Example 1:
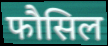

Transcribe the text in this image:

फौसिल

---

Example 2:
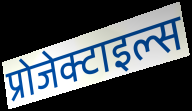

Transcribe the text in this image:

प्रोजेक्टाइल्स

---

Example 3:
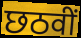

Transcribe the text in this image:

छठवीं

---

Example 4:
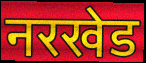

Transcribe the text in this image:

नरखेड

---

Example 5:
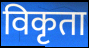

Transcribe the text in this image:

विकृता